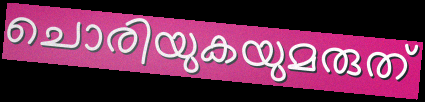
ചൊരിയുകയുമരുത്